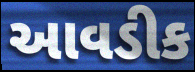
આવડીક